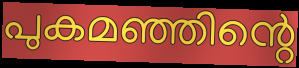
പുകമഞ്ഞിന്റെ